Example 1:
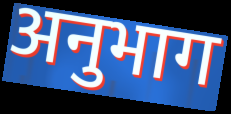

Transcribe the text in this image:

अनुभाग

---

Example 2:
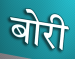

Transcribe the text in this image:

बोरी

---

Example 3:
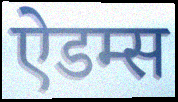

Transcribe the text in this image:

ऐडम्स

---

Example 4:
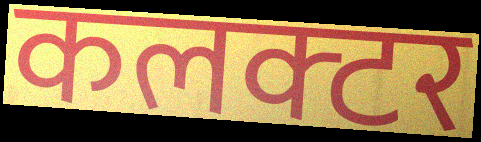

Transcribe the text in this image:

कलक्‍टर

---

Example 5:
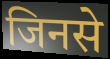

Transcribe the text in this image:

जिनसे